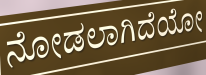
ನೋಡಲಾಗಿದೆಯೋ